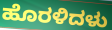
ಹೊರಳಿದಳು